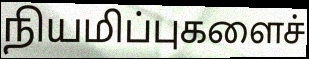
நியமிப்புகளைச்